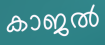
കാജൽ